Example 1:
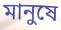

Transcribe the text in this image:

মানুষে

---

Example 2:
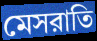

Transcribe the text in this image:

মেসরাতি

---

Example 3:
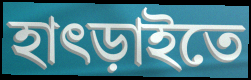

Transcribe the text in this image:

হাৎড়াইতে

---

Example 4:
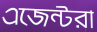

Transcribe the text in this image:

এজেন্টরা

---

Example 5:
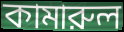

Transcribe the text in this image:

কামারুল